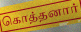
கொத்தனார்